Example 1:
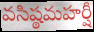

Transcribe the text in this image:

వసిష్ఠమహర్షీ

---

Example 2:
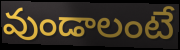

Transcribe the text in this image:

వుండాలంటే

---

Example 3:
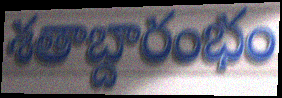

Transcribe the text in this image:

శతాబ్దారంభం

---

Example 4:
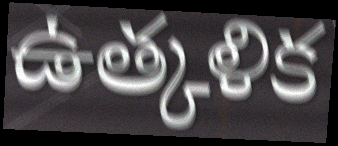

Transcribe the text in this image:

ఉత్కళిక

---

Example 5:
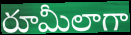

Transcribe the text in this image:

రూమీలాగా